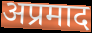
अप्रमाद